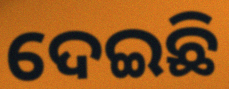
ଦେଇଛି